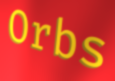
Orbs